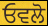
ਓਵਲੋ